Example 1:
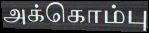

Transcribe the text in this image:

அக்கொம்பு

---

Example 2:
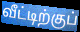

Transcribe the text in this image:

வீட்டிற்குப்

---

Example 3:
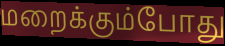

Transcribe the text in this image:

மறைக்கும்போது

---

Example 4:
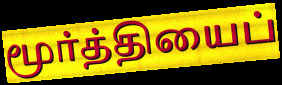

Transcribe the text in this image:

மூர்த்தியைப்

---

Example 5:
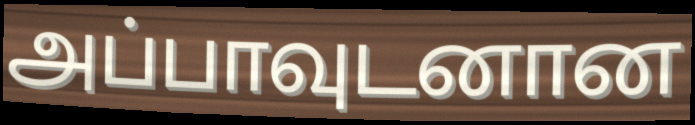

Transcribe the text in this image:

அப்பாவுடனான